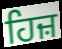
ਹਿਜ਼